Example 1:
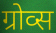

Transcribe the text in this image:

ग्रोव्स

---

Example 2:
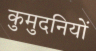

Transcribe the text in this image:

कुमुदनियों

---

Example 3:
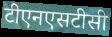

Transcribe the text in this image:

टीएनएसटीसी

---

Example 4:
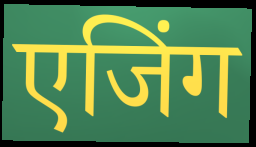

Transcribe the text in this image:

एजिंग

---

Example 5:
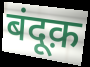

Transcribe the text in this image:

बंदूक़